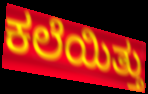
ಕಲೆಯಿತ್ತು